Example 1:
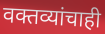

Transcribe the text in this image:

वक्तव्यांचाही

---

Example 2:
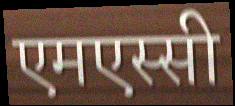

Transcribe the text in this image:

एमएस्सी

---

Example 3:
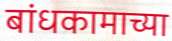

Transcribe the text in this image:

बांधकामाच्या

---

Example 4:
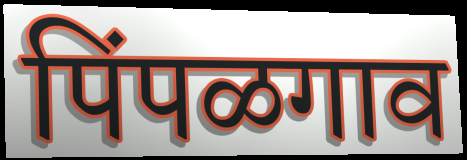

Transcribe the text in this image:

पिंपळगाव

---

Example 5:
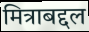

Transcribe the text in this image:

मित्राबद्दल